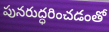
పునరుద్ధరించడంతో